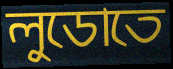
লুডোতে